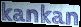
kankan